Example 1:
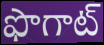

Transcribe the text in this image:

ఫొగాట్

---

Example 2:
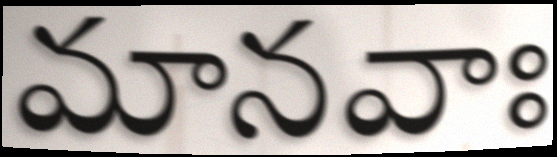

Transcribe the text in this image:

మానవాః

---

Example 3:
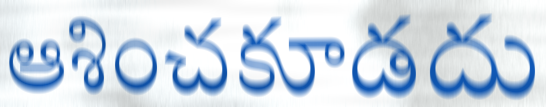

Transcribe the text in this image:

ఆశించకూడదు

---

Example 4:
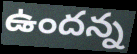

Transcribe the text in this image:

ఉందన్న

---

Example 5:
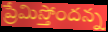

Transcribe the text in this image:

ప్రేమిస్తోందన్న